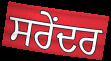
ਸਰੇਂਦਰ